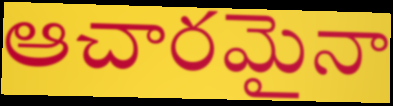
ఆచారమైనా